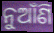
ନୁଆଁଣି